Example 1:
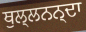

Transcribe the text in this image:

ਥੁਲ੍ਲਨਨ੍ਦਾ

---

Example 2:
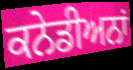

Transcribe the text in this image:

ਕਨੇਡੀਅਨਾਂ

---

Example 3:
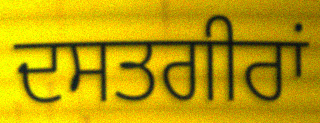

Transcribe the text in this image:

ਦਸਤਗੀਰਾਂ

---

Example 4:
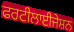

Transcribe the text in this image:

ਫਰਟੀਲਾਈਜੇਸ਼ਨ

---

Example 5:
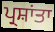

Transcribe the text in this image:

ਪ੍ਰਸ਼ਾਂਤਾ